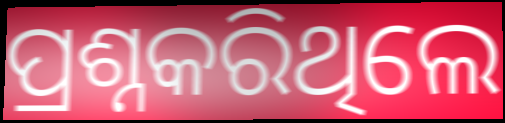
ପ୍ରଶ୍ନକରିଥିଲେ